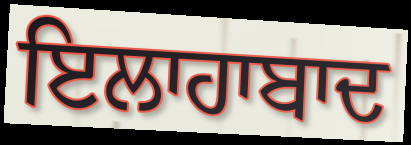
ਇਲਾਹਾਬਾਦ